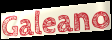
Galeano